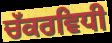
ਚੱਕਰਵਿਧੀ